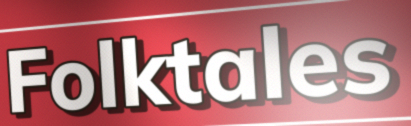
Folktales